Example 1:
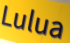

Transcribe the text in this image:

Lulua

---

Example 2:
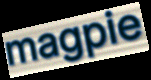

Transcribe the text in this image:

magpie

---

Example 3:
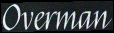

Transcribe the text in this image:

Overman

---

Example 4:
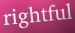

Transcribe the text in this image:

rightful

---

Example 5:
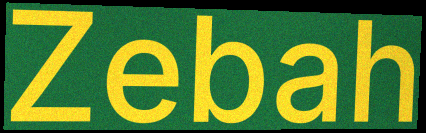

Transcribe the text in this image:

Zebah